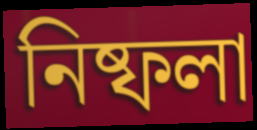
নিষ্ফলা